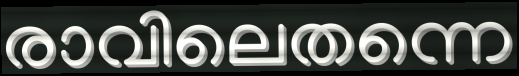
രാവിലെതന്നെ